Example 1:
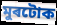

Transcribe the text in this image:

মুৰটোক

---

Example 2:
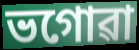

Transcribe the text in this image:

ভগোৱা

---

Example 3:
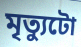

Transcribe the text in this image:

মৃত্যুটো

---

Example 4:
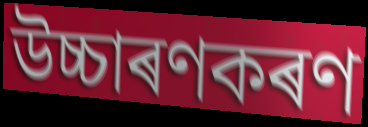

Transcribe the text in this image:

উচ্চাৰণকৰণ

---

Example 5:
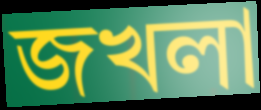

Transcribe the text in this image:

জখলা